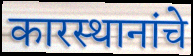
कारस्थानांचे